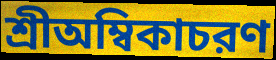
শ্রীঅম্বিকাচরণ